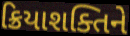
ક્રિયાશક્તિને